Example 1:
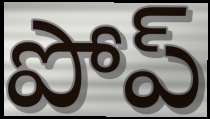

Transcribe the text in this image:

పోప్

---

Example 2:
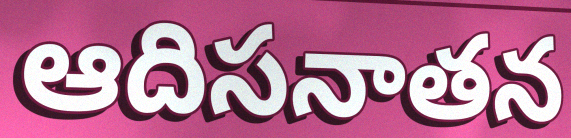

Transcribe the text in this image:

ఆదిసనాతన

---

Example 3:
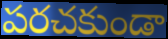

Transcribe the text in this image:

పరచకుండా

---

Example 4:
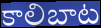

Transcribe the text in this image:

కాలిబాట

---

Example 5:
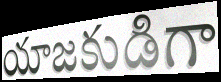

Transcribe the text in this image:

యాజకుడిగా